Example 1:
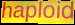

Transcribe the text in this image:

haploid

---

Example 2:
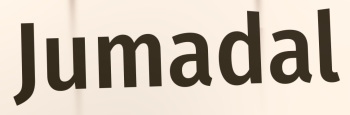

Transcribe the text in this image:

Jumadal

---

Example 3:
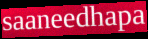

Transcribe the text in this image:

saaneedhapa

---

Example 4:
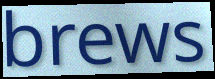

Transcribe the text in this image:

brews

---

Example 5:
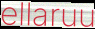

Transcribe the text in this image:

ellaruu